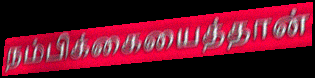
நம்பிக்கையைத்தான்